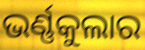
ଭର୍ଣ୍ଣକୁଲାର